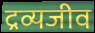
द्रव्यजीव